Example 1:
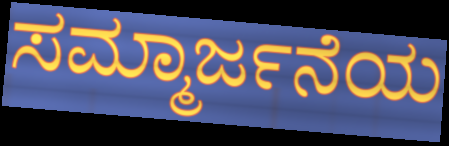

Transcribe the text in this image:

ಸಮ್ಮಾರ್ಜನೆಯ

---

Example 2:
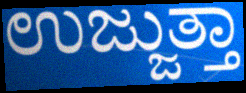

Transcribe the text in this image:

ಉಜ್ಜುತ್ತಾ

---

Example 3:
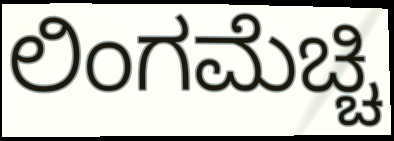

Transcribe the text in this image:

ಲಿಂಗಮೆಚ್ಚಿ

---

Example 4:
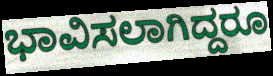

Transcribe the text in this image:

ಭಾವಿಸಲಾಗಿದ್ದರೂ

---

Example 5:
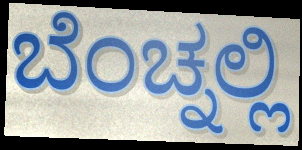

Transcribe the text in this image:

ಬೆಂಚ್ನಲ್ಲಿ